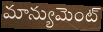
మాన్యుమెంట్